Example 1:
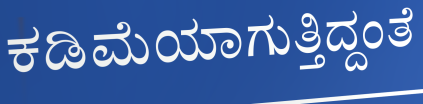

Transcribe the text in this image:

ಕಡಿಮೆಯಾಗುತ್ತಿದ್ದಂತೆ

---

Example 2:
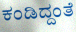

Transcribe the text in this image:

ಕಂಡಿದ್ದಂತೆ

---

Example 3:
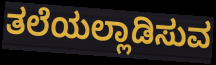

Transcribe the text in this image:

ತಲೆಯಲ್ಲಾಡಿಸುವ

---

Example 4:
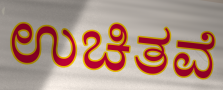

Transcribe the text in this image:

ಉಚಿತವೆ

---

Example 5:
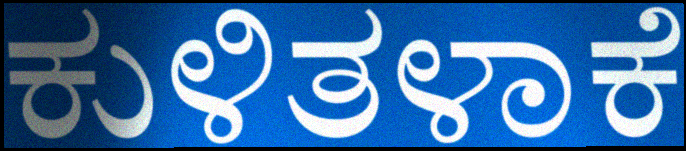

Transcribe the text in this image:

ಕುಳಿತಳಾಕೆ